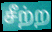
சீற்ற